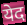
येद